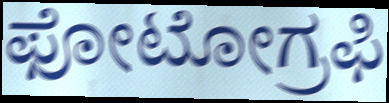
ಫೋಟೋಗ್ರಫಿ